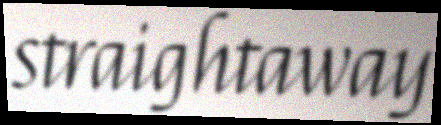
straightaway